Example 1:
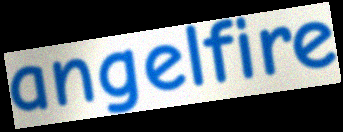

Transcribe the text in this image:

angelfire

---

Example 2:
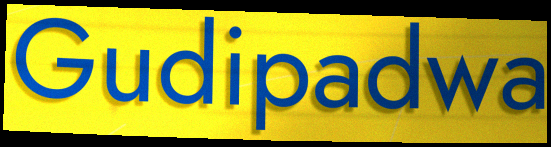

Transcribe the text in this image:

Gudipadwa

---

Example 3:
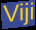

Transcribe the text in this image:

Viji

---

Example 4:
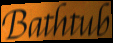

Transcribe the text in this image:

Bathtub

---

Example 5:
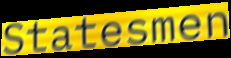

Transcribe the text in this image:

Statesmen